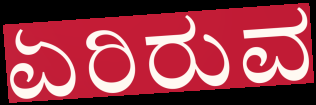
ಏರಿರುವ